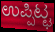
ಉಪ್ಪಿಟ್ಟ